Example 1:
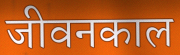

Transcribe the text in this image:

जीवनकाल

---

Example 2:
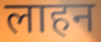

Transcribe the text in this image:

लाहन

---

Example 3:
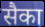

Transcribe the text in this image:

सैका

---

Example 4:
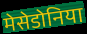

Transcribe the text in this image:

मेसेडोनिया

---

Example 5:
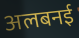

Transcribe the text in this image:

अलबनई